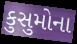
કુસુમોના